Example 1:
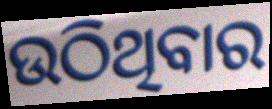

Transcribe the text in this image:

ଉଠିଥିବାର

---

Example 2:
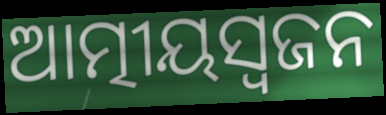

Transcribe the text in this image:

ଆତ୍ମୀୟସ୍ୱଜନ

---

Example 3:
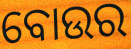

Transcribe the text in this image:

ବୋଉର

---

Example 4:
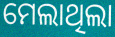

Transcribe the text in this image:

ମେଲାଥିଲା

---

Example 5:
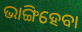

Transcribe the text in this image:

ଭାଙ୍ଗିହେବା